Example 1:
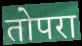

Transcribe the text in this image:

तोपरा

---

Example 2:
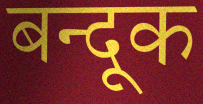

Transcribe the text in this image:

बन्दूक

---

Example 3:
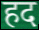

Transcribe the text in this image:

हद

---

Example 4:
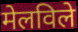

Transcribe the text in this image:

मेलविले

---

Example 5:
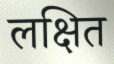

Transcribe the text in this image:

लक्षित